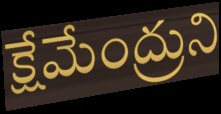
క్షేమేంద్రుని